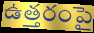
ఉత్తరంపై